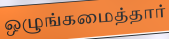
ஒழுங்கமைத்தார்